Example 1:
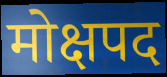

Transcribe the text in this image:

मोक्षपद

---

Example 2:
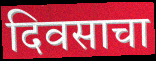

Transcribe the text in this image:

दिवसाचा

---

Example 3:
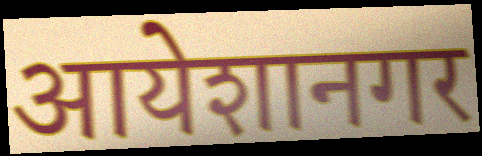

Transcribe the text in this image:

आयेशानगर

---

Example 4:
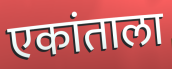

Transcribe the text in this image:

एकांताला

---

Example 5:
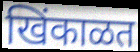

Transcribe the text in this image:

खिंकाळत